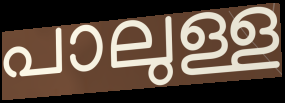
പാലുള്ള